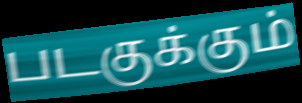
படகுக்கும்